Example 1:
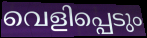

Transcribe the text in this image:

വെളിപ്പെടും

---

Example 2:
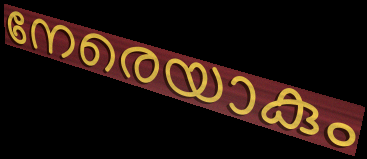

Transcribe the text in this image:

നേരെയാകും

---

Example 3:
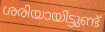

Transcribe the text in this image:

ശരിയായിട്ടുണ്ട്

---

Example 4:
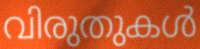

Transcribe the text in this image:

വിരുതുകൾ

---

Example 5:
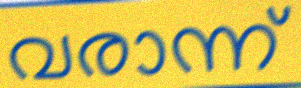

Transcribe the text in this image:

വരാന്ന്